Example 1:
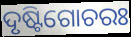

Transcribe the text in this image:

ଦୃଷ୍ଟିଗୋଚରଃ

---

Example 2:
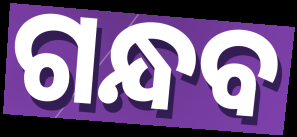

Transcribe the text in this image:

ଗନ୍ଧବ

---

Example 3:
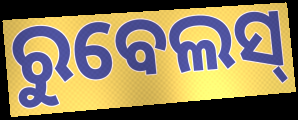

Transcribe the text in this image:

ରୁବେଲସ୍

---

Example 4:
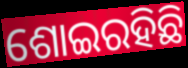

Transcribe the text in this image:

ଶୋଇରହିଛି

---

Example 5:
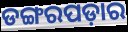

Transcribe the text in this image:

ଡଙ୍ଗରପଡ଼ାର